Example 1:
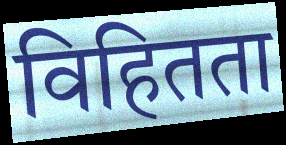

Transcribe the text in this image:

विहितता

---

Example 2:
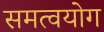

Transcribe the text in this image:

समत्वयोग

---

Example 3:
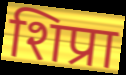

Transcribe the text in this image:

शिप्रा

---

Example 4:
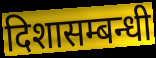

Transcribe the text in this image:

दिशासम्बन्धी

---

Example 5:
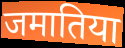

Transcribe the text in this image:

जमातिया